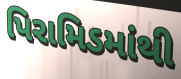
પિરામિડમાંથી